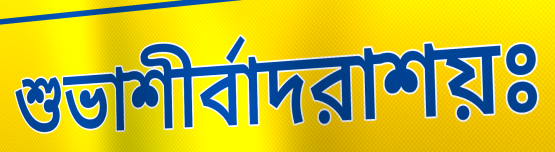
শুভাশীর্বাদরাশয়ঃ